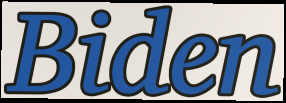
Biden